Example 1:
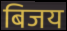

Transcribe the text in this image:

बिजय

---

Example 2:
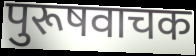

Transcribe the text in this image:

पुरूषवाचक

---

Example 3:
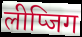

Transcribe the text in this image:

लीप्जिग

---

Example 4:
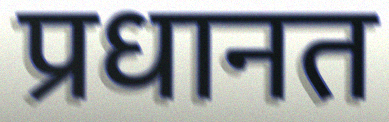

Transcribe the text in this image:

प्रधानत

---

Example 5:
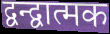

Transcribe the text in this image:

द्वन्द्वात्मक